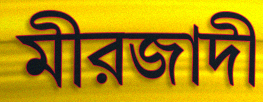
মীরজাদী